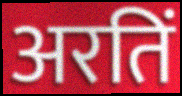
अरतिं